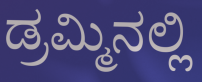
ಡ್ರಮ್ಮಿನಲ್ಲಿ